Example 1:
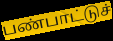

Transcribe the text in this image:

பண்பாட்டுச்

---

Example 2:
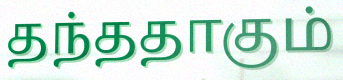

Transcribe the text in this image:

தந்ததாகும்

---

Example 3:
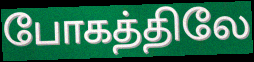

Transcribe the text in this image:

போகத்திலே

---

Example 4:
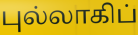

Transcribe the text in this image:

புல்லாகிப்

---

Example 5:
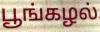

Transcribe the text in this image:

பூங்கழல்